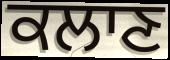
ਕਲਾਣ